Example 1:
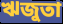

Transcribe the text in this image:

ঋজুতা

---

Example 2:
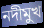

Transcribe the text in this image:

নদীমুখ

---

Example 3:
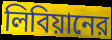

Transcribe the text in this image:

লিবিয়ানের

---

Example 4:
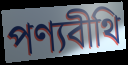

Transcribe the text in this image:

পণ্যবীথি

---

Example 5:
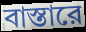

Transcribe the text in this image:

বাস্তারে